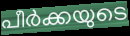
പീർക്കയുടെ